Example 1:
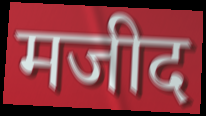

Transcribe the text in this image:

मजीद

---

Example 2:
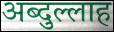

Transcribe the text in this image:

अब्दुल्लाह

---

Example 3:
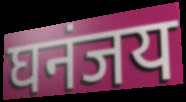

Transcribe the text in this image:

घनंजय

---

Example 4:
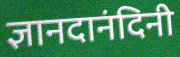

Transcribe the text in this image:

ज्ञानदानंदिनी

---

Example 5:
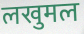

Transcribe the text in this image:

लखुमल